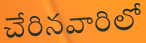
చేరినవారిలో